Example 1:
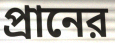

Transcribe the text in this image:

প্রানের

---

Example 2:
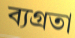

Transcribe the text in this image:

ব্যগ্রতা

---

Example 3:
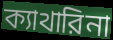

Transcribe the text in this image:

ক্যাথারিনা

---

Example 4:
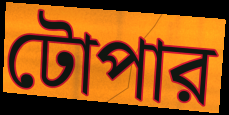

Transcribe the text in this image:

টোপার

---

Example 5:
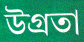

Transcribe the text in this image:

উগ্রতা